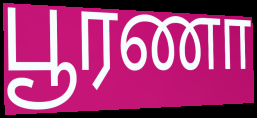
பூரணா